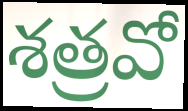
శత్రవో